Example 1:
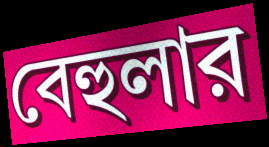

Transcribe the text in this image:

বেহুলার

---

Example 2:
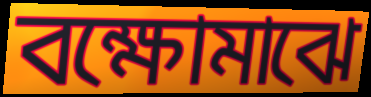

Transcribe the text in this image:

বক্ষোমাঝে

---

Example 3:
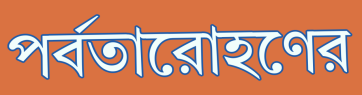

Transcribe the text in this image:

পর্বতারোহণের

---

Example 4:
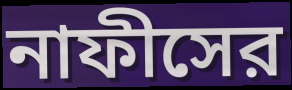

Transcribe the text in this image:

নাফীসের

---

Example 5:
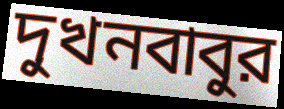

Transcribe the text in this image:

দুখনবাবুর